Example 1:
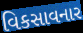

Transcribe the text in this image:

વિકસાવનાર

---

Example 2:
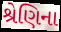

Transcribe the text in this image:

શ્રેણિના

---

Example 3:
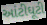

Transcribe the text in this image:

આંટીઘૂટી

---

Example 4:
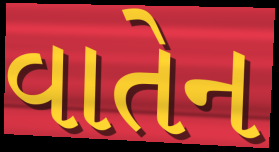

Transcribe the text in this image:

વાતેન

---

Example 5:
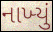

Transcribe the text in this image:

નાખ્‍યું